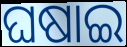
ଘଷାଇ